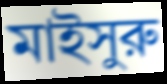
মাইসুরু